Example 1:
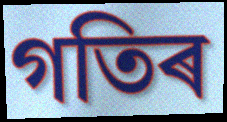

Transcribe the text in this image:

গতিৰ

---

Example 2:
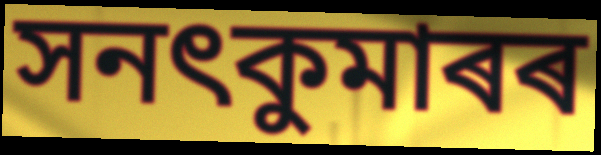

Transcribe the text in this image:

সনৎকুমাৰৰ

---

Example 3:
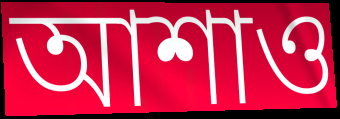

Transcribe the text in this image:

আশাও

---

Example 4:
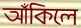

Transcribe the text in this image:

আঁকিলে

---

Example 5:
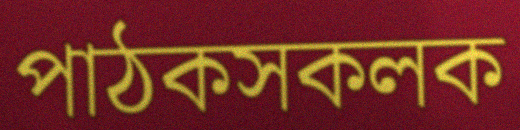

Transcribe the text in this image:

পাঠকসকলক